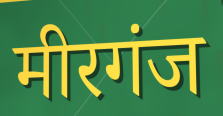
मीरगंज